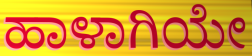
ಹಾಳಾಗಿಯೇ